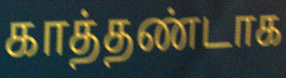
காத்தண்டாக